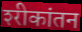
श्रीकांतन